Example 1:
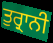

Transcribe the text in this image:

ਤੁਰ੍ਰਾਨੀ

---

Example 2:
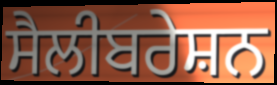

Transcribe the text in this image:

ਸੈਲੀਬਰੇਸ਼ਨ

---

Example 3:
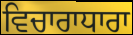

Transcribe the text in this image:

ਵਿਚਾਰਾਧਾਰਾ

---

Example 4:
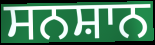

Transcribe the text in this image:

ਸਨਸ਼ਾਨ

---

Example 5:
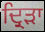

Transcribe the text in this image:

ਦ੍ਰਿੜਾ